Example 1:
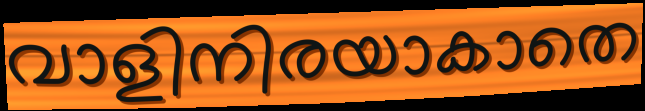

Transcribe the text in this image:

വാളിനിരയാകാതെ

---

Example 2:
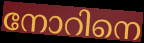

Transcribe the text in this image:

നോറിനെ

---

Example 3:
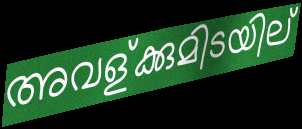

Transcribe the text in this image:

അവള്ക്കുമിടയില്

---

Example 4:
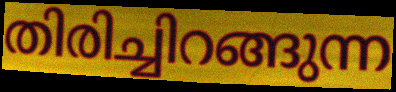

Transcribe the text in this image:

തിരിച്ചിറങ്ങുന്ന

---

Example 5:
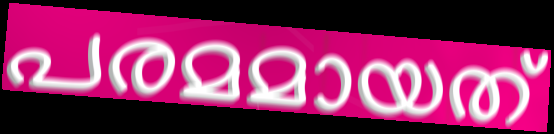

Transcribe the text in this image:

പരമമായത്